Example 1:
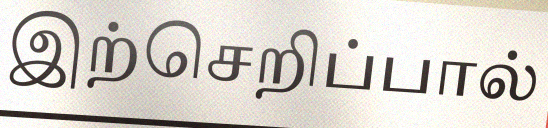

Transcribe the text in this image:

இற்செறிப்பால்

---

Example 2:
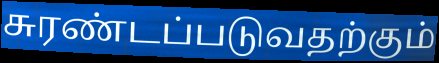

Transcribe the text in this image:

சுரண்டப்படுவதற்கும்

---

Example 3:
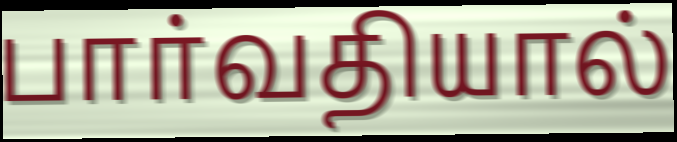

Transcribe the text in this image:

பார்வதியால்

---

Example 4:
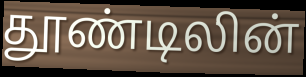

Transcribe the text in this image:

தூண்டிலின்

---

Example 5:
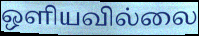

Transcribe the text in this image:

ஒளியவில்லை